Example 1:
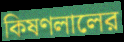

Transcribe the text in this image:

কিষণলালের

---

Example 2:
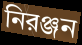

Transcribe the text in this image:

নিরঞ্জন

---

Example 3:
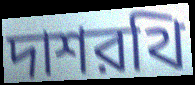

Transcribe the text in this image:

দাশরথি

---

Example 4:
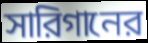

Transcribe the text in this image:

সারিগানের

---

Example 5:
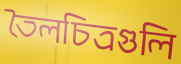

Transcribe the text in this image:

তৈলচিত্রগুলি